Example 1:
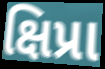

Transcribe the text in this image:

ક્ષિપ્રા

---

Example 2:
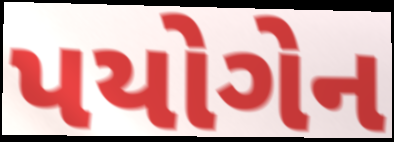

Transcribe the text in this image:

પયોગેન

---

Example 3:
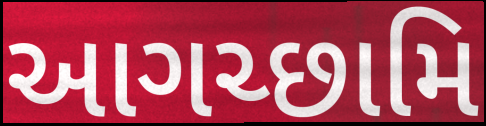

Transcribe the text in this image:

આગચ્છામિ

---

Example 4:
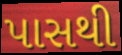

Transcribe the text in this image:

પાસથી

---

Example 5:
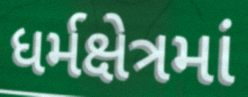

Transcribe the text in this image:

ધર્મક્ષેત્રમાં